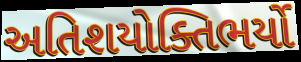
અતિશયોક્તિભર્યો